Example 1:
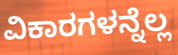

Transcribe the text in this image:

ವಿಕಾರಗಳನ್ನೆಲ್ಲ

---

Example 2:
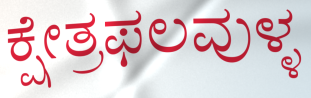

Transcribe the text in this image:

ಕ್ಷೇತ್ರಫಲವುಳ್ಳ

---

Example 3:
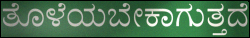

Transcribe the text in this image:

ತೊಳೆಯಬೇಕಾಗುತ್ತದೆ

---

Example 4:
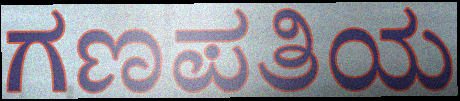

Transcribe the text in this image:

ಗಣಪತಿಯ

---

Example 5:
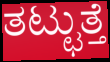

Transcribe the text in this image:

ತಟ್ಟುತ್ತೆ